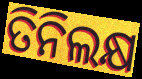
ତିନିଲକ୍ଷ